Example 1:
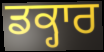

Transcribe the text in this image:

ਡਕ੍ਹਾਰ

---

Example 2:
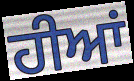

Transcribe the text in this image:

ਹੀਆਂ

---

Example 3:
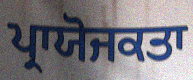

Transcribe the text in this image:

ਪ੍ਰਾਯੋਜਕਤਾ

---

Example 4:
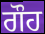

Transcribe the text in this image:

ਗੌਹ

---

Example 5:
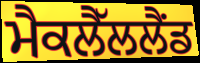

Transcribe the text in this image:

ਮੈਕਲੈੱਲਲੈਂਡ